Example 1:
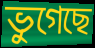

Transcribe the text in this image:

ভুগেছে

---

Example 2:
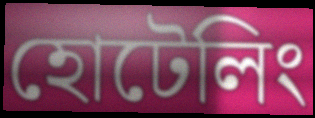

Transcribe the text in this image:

হোটেলিং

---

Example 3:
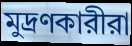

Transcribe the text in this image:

মুদ্রণকারীরা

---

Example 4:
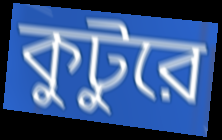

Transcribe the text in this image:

কুটুরে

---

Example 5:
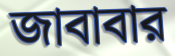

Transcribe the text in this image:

জাবাবার